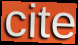
cite